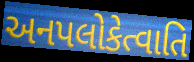
અનપલોકેત્વાતિ